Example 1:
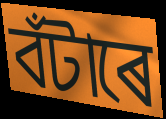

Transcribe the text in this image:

বঁটাৰে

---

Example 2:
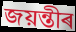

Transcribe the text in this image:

জয়ন্তীৰ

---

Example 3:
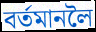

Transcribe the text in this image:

বৰ্তমানলৈ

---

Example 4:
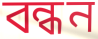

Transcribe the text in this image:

বন্ধন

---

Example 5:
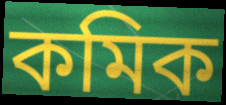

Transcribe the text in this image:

কমিক